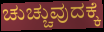
ಚುಚ್ಚುವುದಕ್ಕೆ